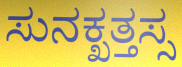
ಸುನಕ್ಖತ್ತಸ್ಸ